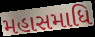
મહાસમાધિ